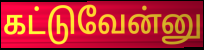
கட்டுவேன்னு